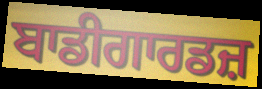
ਬਾਡੀਗਾਰਡਜ਼